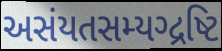
અસંયતસમ્યગ્દ્રષ્ટિ